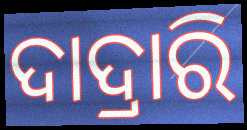
ଦାଦ୍ରାରି